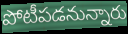
పోటీపడనున్నారు